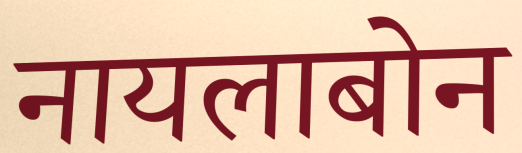
नायलाबोन